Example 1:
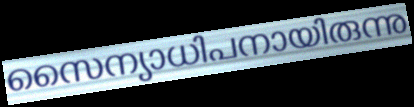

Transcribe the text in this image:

സൈന്യാധിപനായിരുന്നു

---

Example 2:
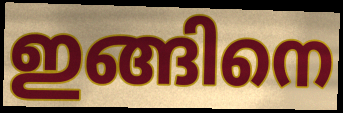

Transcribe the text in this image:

ഇങ്ങിനെ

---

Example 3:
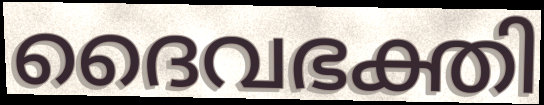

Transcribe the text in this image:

ദൈവഭക്തി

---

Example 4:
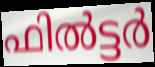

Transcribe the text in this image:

ഫിൽട്ടർ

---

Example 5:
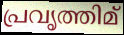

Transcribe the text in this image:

പ്രവൃത്തിമ്